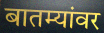
बातम्यांवर